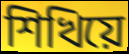
শিখিয়ে